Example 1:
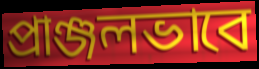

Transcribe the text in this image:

প্রাঞ্জলভাবে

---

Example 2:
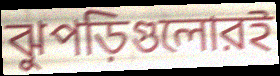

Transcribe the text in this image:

ঝুপড়িগুলোরই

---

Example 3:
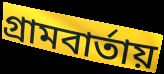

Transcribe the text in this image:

গ্রামবার্তায়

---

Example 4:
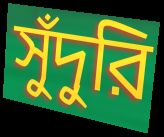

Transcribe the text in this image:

সুঁদুরি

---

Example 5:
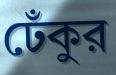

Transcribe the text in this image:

ঢেঁকুর